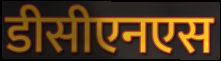
डीसीएनएस